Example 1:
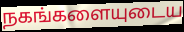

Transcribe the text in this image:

நகங்களையுடைய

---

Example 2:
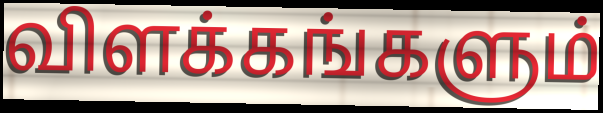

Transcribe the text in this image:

விளக்கங்களும்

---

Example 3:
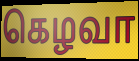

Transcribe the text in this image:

கெழவா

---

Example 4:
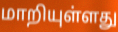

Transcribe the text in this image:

மாறியுள்ளது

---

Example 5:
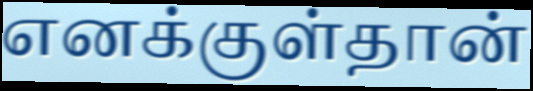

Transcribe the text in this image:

எனக்குள்தான்